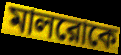
মালরোকে